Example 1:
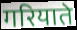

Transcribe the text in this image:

गरियाते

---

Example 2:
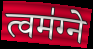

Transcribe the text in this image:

त्वम॑ग्ने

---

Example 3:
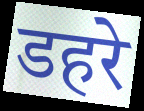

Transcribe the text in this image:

डहरे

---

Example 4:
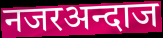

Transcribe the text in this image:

नजरअन्दाज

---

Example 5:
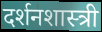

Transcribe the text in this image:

दर्शनशास्त्री